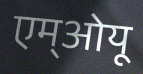
एम्ओयू